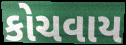
કોચવાય